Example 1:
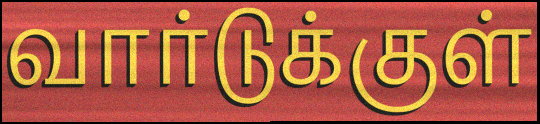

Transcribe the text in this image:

வார்டுக்குள்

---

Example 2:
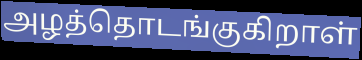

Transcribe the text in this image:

அழத்தொடங்குகிறாள்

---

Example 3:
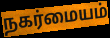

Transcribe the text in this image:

நகர்மையம்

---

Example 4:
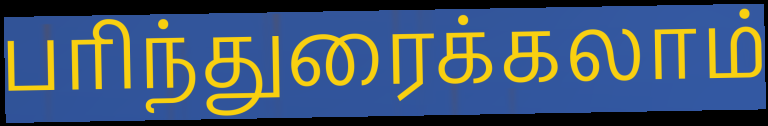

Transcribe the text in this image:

பரிந்துரைக்கலாம்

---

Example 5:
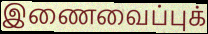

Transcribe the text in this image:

இணைவைப்புக்